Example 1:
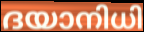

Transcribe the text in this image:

ദയാനിധി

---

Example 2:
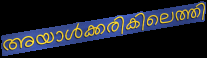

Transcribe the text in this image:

അയാൾക്കരികിലെത്തി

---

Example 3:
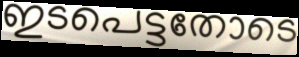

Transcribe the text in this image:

ഇടപെട്ടതോടെ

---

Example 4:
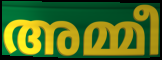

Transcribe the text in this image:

അമ്മീ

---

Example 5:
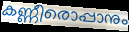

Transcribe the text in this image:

കണ്ണീരൊപ്പാനും